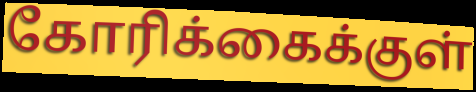
கோரிக்கைக்குள்